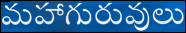
మహాగురువులు